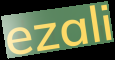
ezali